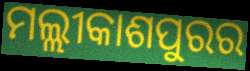
ମଲ୍ଲୀକାଶପୁରର